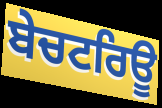
ਬੇਚਟਰਿਊ